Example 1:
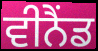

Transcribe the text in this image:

ਵੀਨੈਂਡ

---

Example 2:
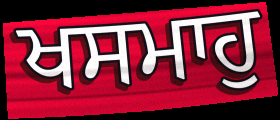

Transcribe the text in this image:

ਖਸਮਾਹੁ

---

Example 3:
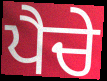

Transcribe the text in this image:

ਪੈਚੇ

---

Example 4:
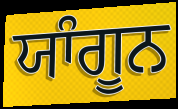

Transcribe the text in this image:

ਯਾੰਗੂਨ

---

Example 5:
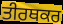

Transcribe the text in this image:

ਤੀਰਥਕਰ